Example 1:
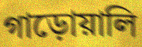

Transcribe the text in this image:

গাড়োয়ালি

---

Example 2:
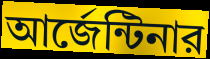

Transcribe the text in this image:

আর্জেন্টিনার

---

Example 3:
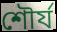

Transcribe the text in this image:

শৌর্য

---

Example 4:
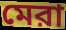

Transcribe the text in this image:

মেরা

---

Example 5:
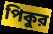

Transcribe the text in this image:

পিকুর